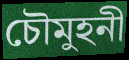
চৌমুহনী